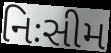
નિઃસીમ